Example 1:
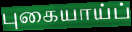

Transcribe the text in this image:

புகையாய்ப்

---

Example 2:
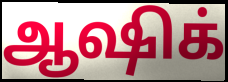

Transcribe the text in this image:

ஆஷிக்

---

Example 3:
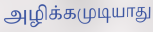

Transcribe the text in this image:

அழிக்கமுடியாது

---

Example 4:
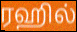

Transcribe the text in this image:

ரஹில்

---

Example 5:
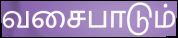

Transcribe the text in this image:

வசைபாடும்